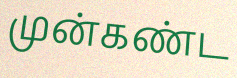
முன்கண்ட